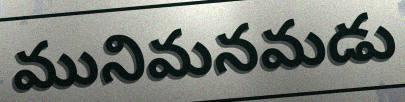
మునిమనమడు